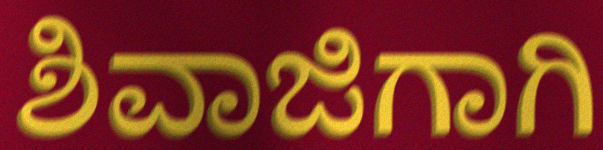
ಶಿವಾಜಿಗಾಗಿ